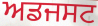
ਅਡਜਸਟ